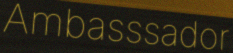
Ambasssador